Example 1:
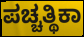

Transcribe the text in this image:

ಪಚ್ಚತ್ಥಿಕಾ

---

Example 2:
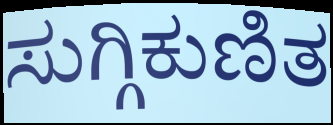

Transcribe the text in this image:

ಸುಗ್ಗಿಕುಣಿತ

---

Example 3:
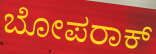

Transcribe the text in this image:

ಬೋಪರಾಕ್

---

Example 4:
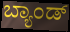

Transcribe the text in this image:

ಬ್ಯಾಂಡ್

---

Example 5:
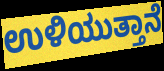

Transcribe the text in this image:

ಉಳಿಯುತ್ತಾನೆ